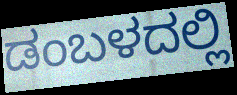
ಡಂಬಳದಲ್ಲಿ